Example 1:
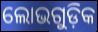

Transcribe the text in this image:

ଲୋଭଗୁଡ଼ିକ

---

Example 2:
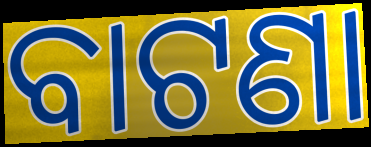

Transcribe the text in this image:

ବାଟଣା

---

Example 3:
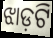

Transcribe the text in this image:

ଝାଡ଼ଟି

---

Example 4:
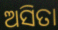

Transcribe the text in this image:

ଅସିତା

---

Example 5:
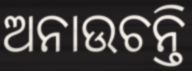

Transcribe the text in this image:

ଅନାଉଚନ୍ତି